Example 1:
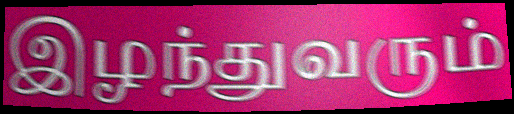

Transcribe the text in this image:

இழந்துவரும்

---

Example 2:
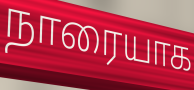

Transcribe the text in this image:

நாரையாக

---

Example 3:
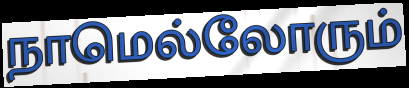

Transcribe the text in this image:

நாமெல்லோரும்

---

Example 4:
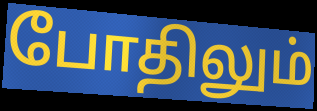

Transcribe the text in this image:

போதிலும்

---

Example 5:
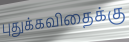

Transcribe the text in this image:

புதுக்கவிதைக்கு